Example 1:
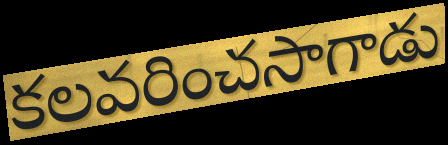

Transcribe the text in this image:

కలవరించసాగాడు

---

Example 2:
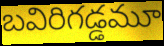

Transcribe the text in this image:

బవిరిగడ్డమూ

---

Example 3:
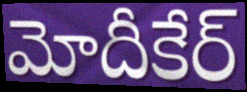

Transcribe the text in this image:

మోదీకేర్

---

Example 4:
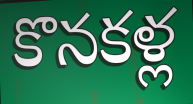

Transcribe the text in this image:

కొనకళ్ల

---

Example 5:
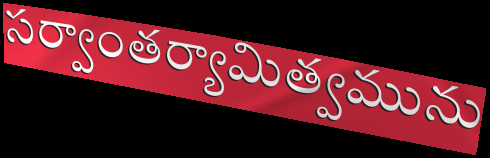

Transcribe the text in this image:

సర్వాంతర్యామిత్వమును